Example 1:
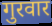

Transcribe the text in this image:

गुरवार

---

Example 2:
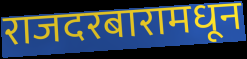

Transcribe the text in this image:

राजदरबारामधून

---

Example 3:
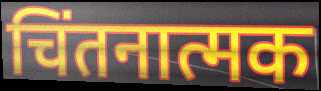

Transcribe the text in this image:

चिंतनात्मक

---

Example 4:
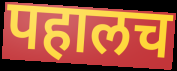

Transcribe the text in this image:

पहालच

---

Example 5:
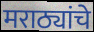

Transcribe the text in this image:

मराठ्यांचे